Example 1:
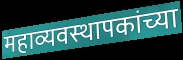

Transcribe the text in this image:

महाव्यवस्थापकांच्या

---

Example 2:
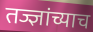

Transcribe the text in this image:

तज्ज्ञांच्याच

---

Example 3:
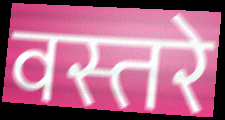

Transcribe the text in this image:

वस्तरे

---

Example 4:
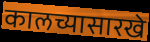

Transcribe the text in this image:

कालच्यासारखे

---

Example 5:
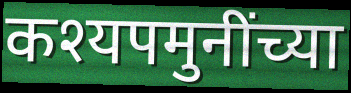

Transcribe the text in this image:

कश्यपमुनींच्या